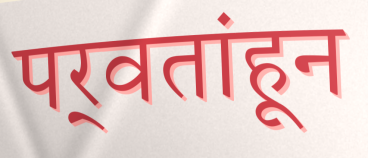
पर्वतांहून